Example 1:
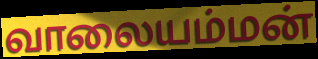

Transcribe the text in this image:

வாலையம்மன்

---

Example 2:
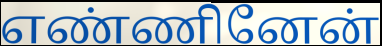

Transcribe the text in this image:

எண்ணினேன்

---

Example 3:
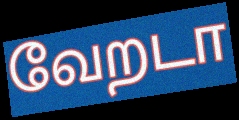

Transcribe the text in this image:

வேறடா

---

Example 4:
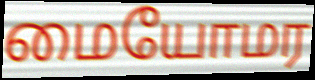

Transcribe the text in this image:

மையோமர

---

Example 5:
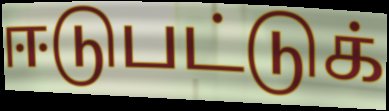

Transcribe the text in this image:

ஈடுபட்டுக்